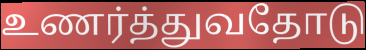
உணர்த்துவதோடு